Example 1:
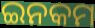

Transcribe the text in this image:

ଇନକମ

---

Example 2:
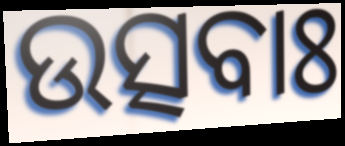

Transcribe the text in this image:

ଉତ୍ସବାଃ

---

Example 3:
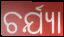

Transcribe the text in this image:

ଚର୍ଯ୍ଯା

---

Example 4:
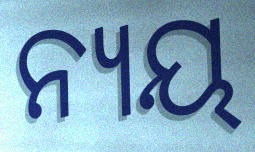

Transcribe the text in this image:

ନ୍ୟୟ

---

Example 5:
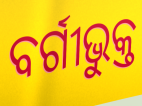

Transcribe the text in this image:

ବର୍ଗୀଭୁକ୍ତ